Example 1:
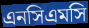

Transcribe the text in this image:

এনসিএমসি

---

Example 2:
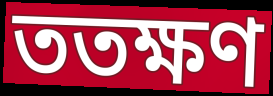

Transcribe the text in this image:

ততক্ষণ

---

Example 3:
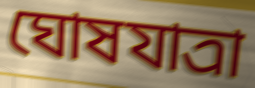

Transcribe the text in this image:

ঘোষযাত্রা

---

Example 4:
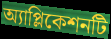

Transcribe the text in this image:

অ্যাপ্লিকেশনটি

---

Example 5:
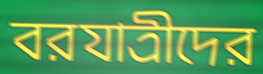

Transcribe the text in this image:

বরযাত্রীদের